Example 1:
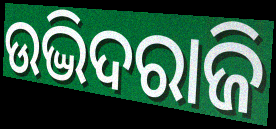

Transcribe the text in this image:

ଉଦ୍ଭିଦରାଜି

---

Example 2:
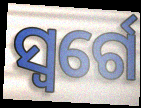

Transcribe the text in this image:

ସ୍ୱର୍ଗେ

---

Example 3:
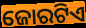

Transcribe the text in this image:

ଜୋରଟିଏ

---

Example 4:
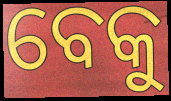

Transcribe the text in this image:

ବେକୁ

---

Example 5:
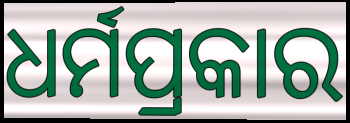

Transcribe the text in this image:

ଧର୍ମପ୍ରକାର